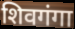
शिवगंगा